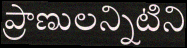
ప్రాణులన్నిటిని